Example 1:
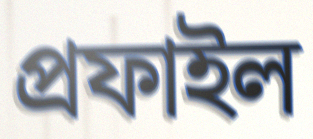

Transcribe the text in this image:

প্ৰফাইল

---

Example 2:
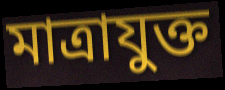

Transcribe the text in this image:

মাত্ৰাযুক্ত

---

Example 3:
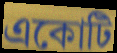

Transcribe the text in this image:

একোটি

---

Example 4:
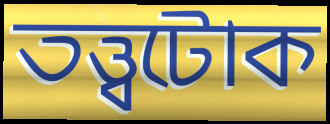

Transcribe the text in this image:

তত্ত্বটোক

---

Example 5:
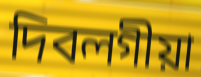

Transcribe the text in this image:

দিবলগীয়া